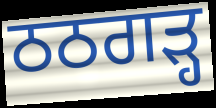
ਠਠਗੜ੍ਹ